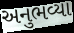
અનુભવ્યા